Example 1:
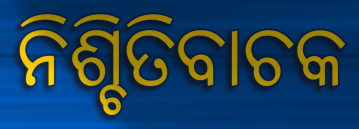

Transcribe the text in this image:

ନିଶ୍ଚିତିବାଚକ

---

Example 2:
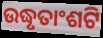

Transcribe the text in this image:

ଉଦ୍ଧୃତାଂଶଟି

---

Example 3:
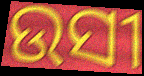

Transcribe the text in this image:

ଉସୀ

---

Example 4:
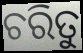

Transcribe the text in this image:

ଚରିତୁ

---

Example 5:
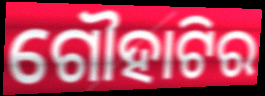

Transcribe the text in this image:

ଗୌହାଟିର